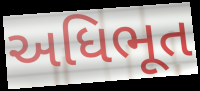
અધિભૂત